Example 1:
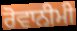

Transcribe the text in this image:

ਰੋਵਾਨੀਮੀ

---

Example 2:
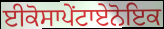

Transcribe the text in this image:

ਈਕੋਸਾਪੇਂਟਾਏਨੋਇਕ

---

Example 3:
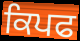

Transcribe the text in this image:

ਕਿਪਫ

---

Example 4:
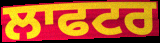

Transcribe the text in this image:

ਲਾਫਟਰ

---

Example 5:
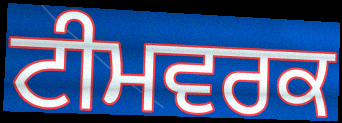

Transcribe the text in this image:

ਟੀਮਵਰਕ